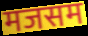
मजसम